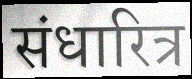
संधारित्र